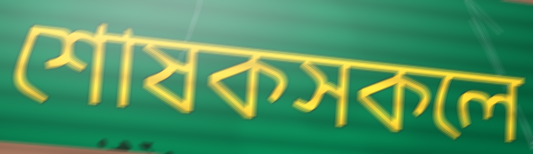
শোষকসকলে